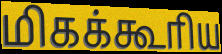
மிகக்கூரிய